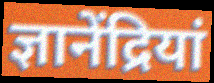
ज्ञानेंद्रियां